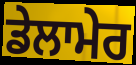
ਡੇਲਾਮੇਰ